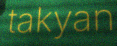
takyan